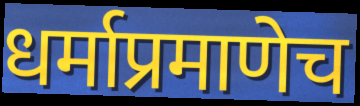
धर्माप्रमाणेच